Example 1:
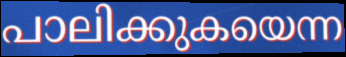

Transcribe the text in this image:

പാലിക്കുകയെന്ന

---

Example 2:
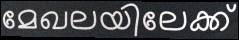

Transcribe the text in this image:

മേഖലയിലേക്ക്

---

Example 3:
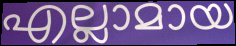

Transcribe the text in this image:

എല്ലാമായ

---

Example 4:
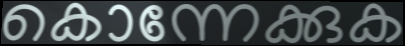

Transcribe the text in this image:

കൊന്നേക്കുക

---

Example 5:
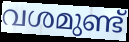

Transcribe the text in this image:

വശമുണ്ട്